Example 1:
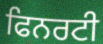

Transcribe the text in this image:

ਫਿਨਰਟੀ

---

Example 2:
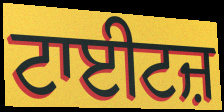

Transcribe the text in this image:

ਟਾਈਟਜ਼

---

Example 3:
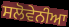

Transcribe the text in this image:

ਸਲੋਵੇਨੀਆ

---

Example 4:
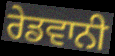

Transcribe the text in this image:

ਰੇਡਵਾਨੀ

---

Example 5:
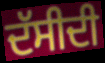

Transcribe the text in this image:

ਦੱਸੀਦੀ